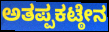
ಅತಪ್ಪಕಟ್ಠೇನ